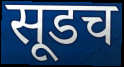
सूडच